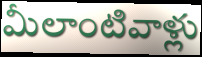
మీలాంటివాళ్లు